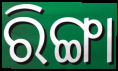
ରିଙ୍ଗା